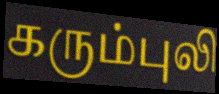
கரும்புலி